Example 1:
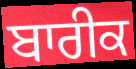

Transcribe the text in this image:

ਬਾਰੀਕ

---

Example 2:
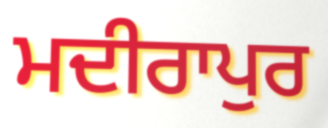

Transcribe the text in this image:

ਮਦੀਰਾਪੁਰ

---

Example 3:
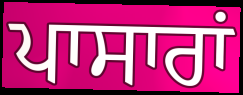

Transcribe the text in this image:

ਪਾਸਾਰਾਂ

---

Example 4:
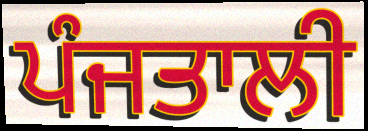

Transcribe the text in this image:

ਪੰਜਤਾਲੀ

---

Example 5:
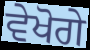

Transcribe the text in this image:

ਵੇਖੋਗੇ